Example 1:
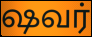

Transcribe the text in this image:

ஷவர்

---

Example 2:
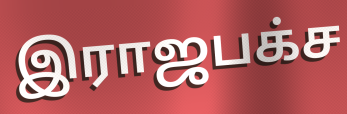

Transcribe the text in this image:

இராஜபக்ச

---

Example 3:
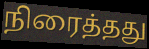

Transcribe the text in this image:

நிரைத்தது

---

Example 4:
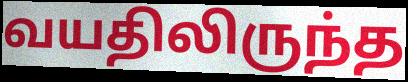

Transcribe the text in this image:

வயதிலிருந்த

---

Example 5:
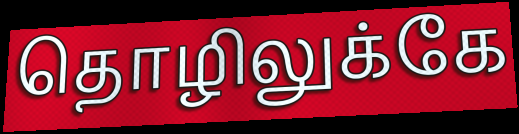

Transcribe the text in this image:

தொழிலுக்கே